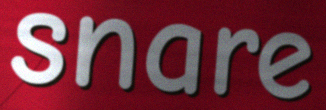
snare